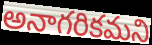
అనాగరికమని